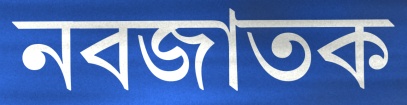
নবজাতক